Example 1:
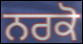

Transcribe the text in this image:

ਨਰਕੋ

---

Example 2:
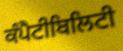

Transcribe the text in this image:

ਕੰਪੈਟੀਬਿਲਿਟੀ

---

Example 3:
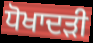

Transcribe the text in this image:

ਧੋਖਾਦੜੀ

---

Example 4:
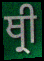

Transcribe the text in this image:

ਥ੍ਰੀ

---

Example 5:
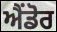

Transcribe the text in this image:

ਐਂਡੋਰ